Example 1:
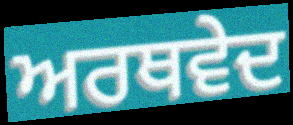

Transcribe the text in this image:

ਅਰਥਵੇਦ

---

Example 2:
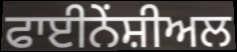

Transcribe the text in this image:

ਫਾਈਨੇਂਸ਼ੀਅਲ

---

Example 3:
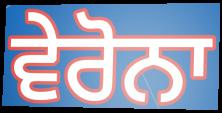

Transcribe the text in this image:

ਵੇਰੋਨਾ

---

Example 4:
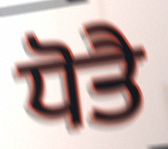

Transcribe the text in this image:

ਧੋਤੈ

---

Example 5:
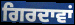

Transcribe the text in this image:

ਗਿਰਦਾਵਾਂ